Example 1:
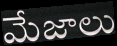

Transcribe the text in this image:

మేజాలు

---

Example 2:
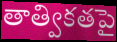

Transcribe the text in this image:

తాత్వికతపై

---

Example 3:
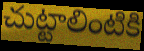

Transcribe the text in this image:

చుట్టాలింటికి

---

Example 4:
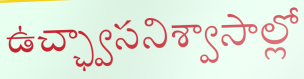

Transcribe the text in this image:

ఉచ్ఛ్వాసనిశ్వాసాల్లో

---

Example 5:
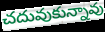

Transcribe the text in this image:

చదువుకున్నావు